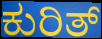
ಕುರಿತ್